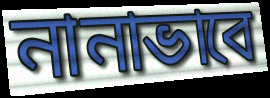
নানাভাবে